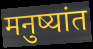
मनुष्यांत